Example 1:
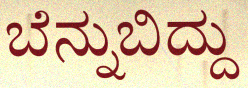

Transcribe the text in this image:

ಬೆನ್ನುಬಿದ್ದು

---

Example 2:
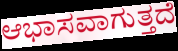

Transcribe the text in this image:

ಆಭಾಸವಾಗುತ್ತದೆ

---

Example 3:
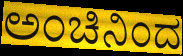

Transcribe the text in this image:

ಅಂಚಿನಿಂದ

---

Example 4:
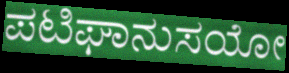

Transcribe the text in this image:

ಪಟಿಘಾನುಸಯೋ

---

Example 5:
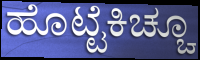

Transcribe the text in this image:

ಹೊಟ್ಟೆಕಿಚ್ಚೂ